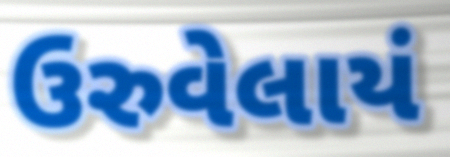
ઉરુવેલાયં